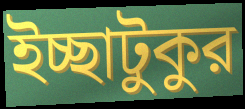
ইচ্ছাটুকুর